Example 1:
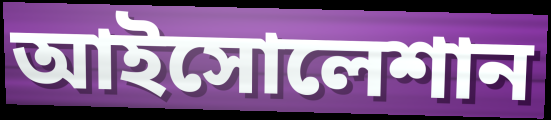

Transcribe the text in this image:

আইসোলেশান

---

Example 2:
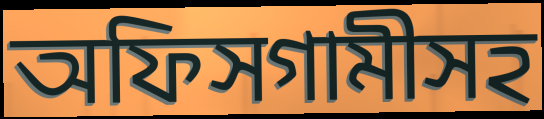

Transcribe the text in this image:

অফিসগামীসহ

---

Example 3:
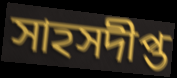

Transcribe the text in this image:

সাহসদীপ্ত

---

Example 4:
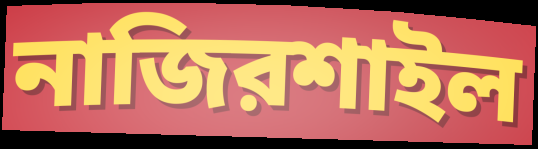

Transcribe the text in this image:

নাজিরশাইল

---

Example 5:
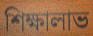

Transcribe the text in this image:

শিক্ষালাভ